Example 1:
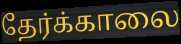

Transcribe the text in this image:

தேர்க்காலை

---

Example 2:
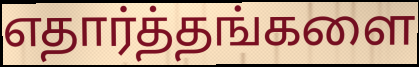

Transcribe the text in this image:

எதார்த்தங்களை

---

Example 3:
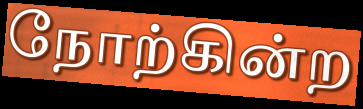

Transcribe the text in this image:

நோற்கின்ற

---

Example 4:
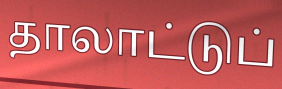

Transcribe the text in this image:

தாலாட்டுப்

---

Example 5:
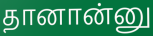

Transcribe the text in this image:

தானான்னு